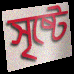
সৃষ্টে